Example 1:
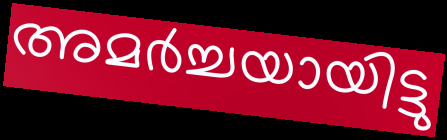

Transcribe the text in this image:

അമർച്ചയായിട്ടു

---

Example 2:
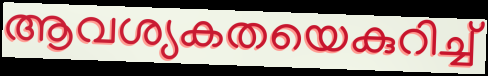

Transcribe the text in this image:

ആവശ്യകതയെകുറിച്ച്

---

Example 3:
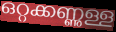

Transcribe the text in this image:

ഒറ്റക്കണ്ണുള്ള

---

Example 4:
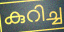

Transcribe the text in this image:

കുറിച്ച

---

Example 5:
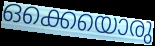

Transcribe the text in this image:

ഒക്കെയൊരു